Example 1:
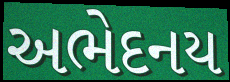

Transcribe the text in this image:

અભેદનય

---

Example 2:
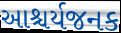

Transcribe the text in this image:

આશ્ચર્યજનક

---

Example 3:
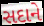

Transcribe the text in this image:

સદાને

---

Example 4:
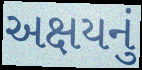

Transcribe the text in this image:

અક્ષયનું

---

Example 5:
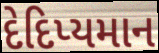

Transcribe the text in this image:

દેદિપ્યમાન